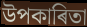
উপকাৰিতা